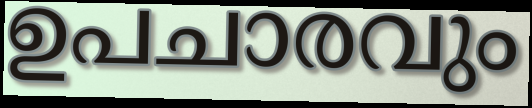
ഉപചാരവും